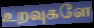
உறவுகளே